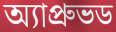
অ্যাপ্রুভড